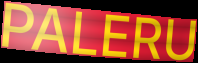
PALERU